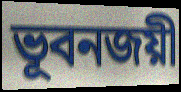
ভূবনজয়ী